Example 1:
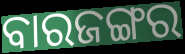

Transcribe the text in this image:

ବାରଜଙ୍ଗର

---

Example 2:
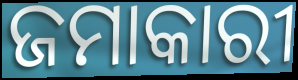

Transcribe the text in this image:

ଜମାକାରୀ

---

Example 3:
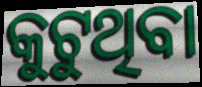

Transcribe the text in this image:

କୁଟୁଥିବା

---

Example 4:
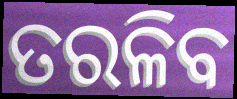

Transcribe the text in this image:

ତରଳିବ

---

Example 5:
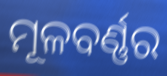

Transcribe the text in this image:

ମୂଳବର୍ଣ୍ଣର